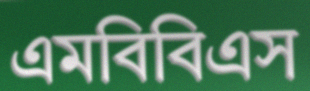
এমবিবিএস